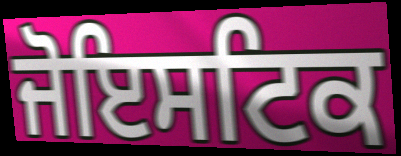
ਜੋਇਸਟਿਕ